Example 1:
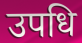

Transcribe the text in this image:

उपधि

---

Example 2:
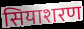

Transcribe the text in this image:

सियाशरण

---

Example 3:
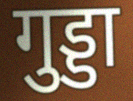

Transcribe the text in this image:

गुड्डा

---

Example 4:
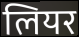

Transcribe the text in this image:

लियर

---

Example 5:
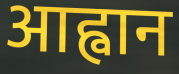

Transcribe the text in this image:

आह्वान